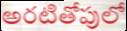
అరటితోపులో